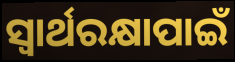
ସ୍ବାର୍ଥରକ୍ଷାପାଇଁ